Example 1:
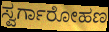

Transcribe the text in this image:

ಸ್ವರ್ಗಾರೋಹಣ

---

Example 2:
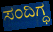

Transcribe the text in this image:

ಸಂದಿಗ್ಧ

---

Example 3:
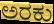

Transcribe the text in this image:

ಅರಕು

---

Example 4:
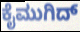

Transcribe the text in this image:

ಕೈಮುಗಿದ್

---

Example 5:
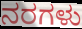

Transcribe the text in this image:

ನರಗಳು